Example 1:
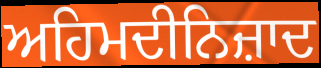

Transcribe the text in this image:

ਅਹਿਮਦੀਨਿਜ਼ਾਦ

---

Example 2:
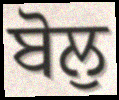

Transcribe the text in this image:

ਬੋਲੁ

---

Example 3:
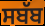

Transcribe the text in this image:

ਸਬੱਬ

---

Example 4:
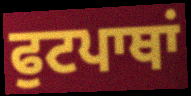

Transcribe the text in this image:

ਫੁਟਪਾਥਾਂ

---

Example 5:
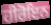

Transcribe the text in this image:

ਹੀਰੋਇਨ